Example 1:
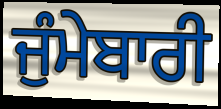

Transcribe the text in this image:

ਜੁੰਮੇਬਾਰੀ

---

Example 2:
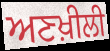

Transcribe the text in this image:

ਅਣਖ਼ੀਲੀ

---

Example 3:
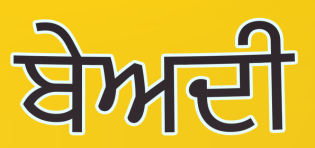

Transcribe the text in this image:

ਬੇਅਦੀ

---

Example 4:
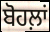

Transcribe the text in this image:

ਬੋਹਲ਼ਾਂ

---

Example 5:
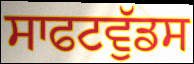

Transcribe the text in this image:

ਸਾਫਟਵੁੱਡਸ